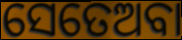
ସେତେଅବା